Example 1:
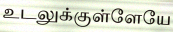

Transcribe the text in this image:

உடலுக்குள்ளேயே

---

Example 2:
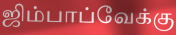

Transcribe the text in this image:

ஜிம்பாப்வேக்கு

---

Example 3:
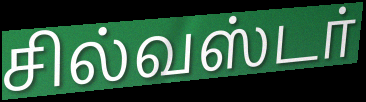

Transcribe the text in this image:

சில்வஸ்டர்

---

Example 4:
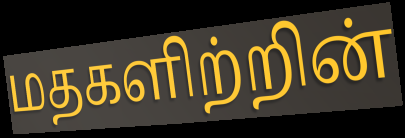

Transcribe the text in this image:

மதகளிற்றின்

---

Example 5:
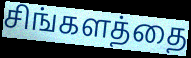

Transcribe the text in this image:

சிங்களத்தை